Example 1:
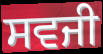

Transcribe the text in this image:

ਸਵਜੀ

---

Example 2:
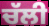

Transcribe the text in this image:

ਚੱਲੀ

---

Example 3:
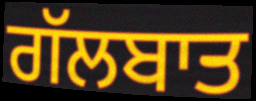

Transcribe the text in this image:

ਗੱਲਬਾਤ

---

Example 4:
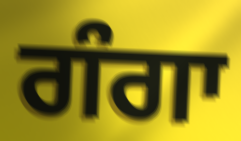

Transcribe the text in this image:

ਗੰਗਾ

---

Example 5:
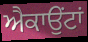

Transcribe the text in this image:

ਐਕਾਉਂਟਾਂ